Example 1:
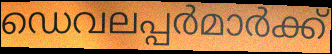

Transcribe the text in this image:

ഡെവലപ്പർമാർക്ക്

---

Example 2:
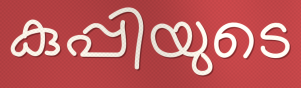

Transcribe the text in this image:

കുപ്പിയുടെ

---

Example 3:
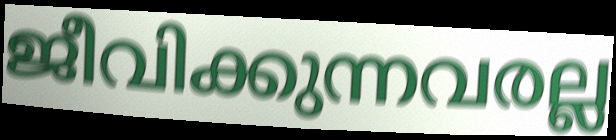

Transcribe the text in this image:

ജീവിക്കുന്നവരല്ല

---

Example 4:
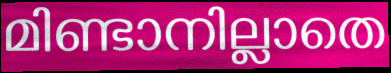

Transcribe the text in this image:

മിണ്ടാനില്ലാതെ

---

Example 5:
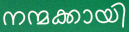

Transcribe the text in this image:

നന്മക്കായി